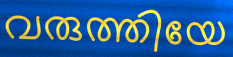
വരുത്തിയേ